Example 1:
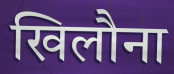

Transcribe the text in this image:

खिलौना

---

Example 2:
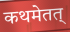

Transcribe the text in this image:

कथमेतत्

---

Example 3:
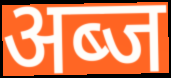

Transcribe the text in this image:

अब्ज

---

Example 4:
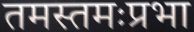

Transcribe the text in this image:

तमस्तमःप्रभा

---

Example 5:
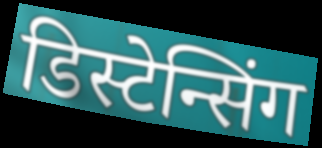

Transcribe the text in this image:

डिस्टेन्सिंग